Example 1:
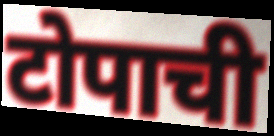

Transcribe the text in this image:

टोपाची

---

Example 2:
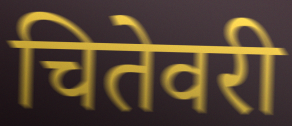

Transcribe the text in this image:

चितेवरी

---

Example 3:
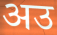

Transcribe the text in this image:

अउ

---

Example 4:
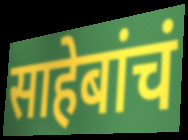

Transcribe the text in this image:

साहेबांचं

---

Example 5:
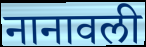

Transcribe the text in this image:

नानावली